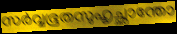
സർവ്വഭൂതസുഹൃച്ഛാന്തോ